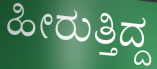
ಹೀರುತ್ತಿದ್ದ